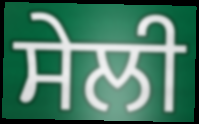
ਸੇਲੀ